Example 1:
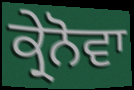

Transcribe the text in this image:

ਕ੍ਰੇਨੋਵਾ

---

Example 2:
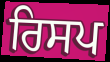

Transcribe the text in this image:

ਰਿਸਪ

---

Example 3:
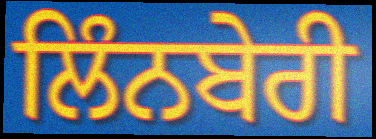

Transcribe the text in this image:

ਲਿੰਨਬੇਰੀ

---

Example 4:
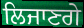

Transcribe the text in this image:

ਲਿਜਾਣਗੇ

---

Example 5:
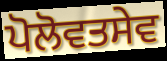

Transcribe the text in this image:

ਪੋਲੋਵਤਸੇਵ